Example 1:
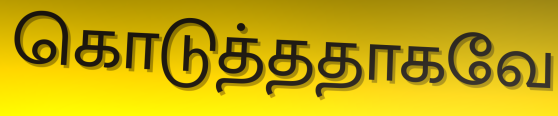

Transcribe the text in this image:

கொடுத்ததாகவே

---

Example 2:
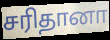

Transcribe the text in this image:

சரிதானா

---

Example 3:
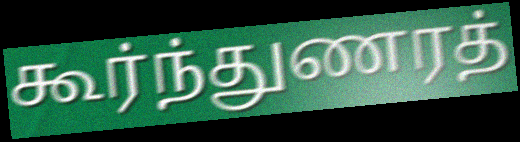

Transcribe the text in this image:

கூர்ந்துணரத்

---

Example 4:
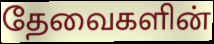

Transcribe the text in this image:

தேவைகளின்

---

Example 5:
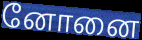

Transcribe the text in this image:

னோனை